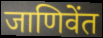
जाणिवेंत